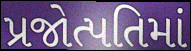
પ્રજોત્પતિમાં